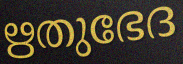
ഋതുഭേദ